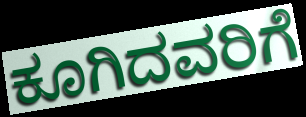
ಕೂಗಿದವರಿಗೆ